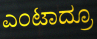
ಎಂಟಾದ್ರೂ